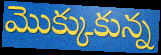
మొక్కుకున్న